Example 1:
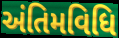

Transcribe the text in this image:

અંતિમવિધિ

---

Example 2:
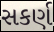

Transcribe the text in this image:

સકર્ણ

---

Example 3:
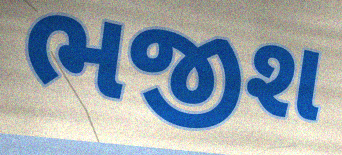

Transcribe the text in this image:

ભજીશ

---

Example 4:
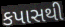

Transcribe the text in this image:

કપાસથી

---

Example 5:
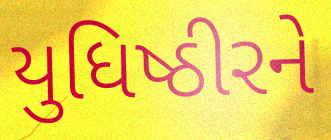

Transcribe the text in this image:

યુધિષ્ઠીરને